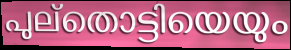
പുല്തൊട്ടിയെയും